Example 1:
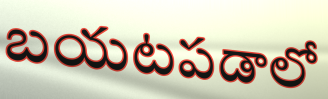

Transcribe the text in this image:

బయటపడాలో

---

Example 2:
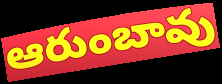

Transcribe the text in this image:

ఆరుంబావు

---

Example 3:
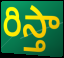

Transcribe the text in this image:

రిస్తా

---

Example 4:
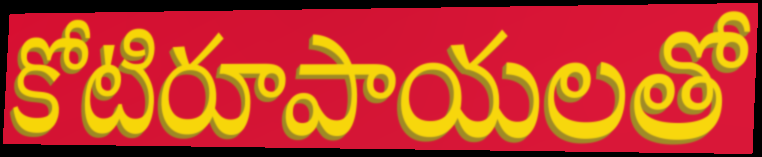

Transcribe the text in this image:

కోటిరూపాయలతో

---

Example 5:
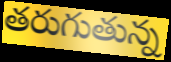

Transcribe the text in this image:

తరుగుతున్న